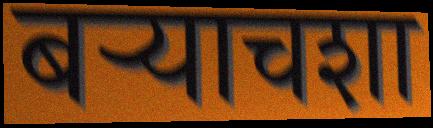
बर्‍याचशा